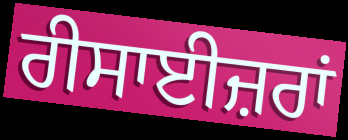
ਰੀਸਾਈਜ਼ਰਾਂ